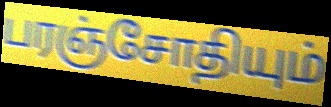
பரஞ்சோதியும்